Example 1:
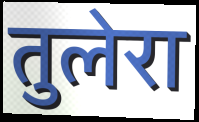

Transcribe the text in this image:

तुलेरा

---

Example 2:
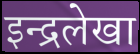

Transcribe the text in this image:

इन्द्रलेखा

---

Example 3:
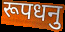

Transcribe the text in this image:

रूपधनु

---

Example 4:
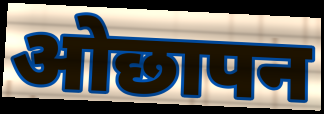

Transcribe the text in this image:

ओछापन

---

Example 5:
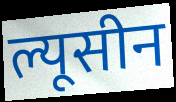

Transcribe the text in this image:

ल्यूसीन